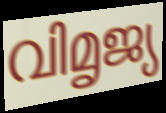
വിമൃജ്യ